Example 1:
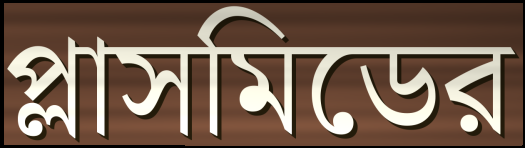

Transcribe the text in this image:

প্লাসমিডের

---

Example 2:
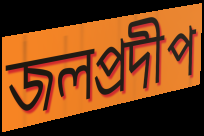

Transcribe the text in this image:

জলপ্রদীপ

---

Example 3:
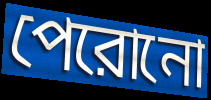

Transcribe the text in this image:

পেরোনো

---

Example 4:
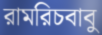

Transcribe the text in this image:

রামরিচবাবু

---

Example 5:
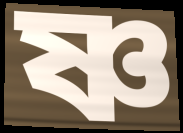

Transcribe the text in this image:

ষ্ণ